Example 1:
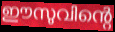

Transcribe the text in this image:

ഈസുവിന്റെ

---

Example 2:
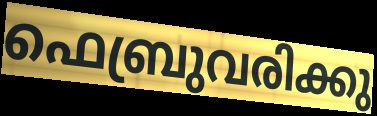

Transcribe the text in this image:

ഫെബ്രുവരിക്കു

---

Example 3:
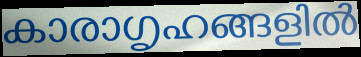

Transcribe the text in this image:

കാരാഗൃഹങ്ങളിൽ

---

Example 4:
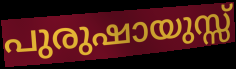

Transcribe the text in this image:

പുരുഷായുസ്സ്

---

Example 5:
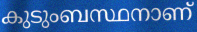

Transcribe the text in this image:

കുടുംബസ്ഥനാണ്